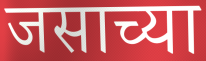
जसाच्या